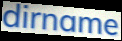
dirname